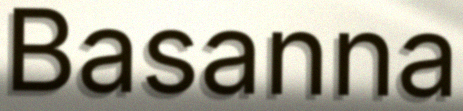
Basanna